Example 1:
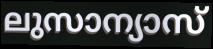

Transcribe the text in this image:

ലുസാന്യാസ്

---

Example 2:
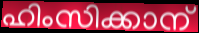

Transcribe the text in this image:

ഹിംസിക്കാന്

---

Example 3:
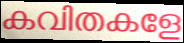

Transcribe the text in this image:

കവിതകളേ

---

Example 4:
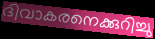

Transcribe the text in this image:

ദിവാകരനെക്കുറിച്ചു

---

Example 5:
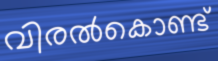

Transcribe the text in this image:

വിരൽകൊണ്ട്